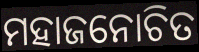
ମହାଜନୋଚିତ